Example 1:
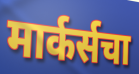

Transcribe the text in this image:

मार्कर्सचा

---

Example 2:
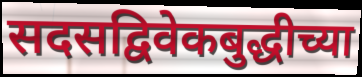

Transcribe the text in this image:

सदसद्विवेकबुद्धीच्या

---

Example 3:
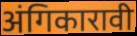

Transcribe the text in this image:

अंगिकारावी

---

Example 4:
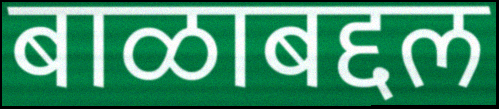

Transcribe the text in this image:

बाळाबद्दल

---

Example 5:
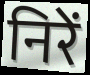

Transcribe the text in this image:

निरें